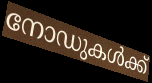
നോഡുകൾക്ക്